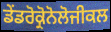
ਡੇਂਡਰੋਕ੍ਰੋਨੋਲੋਜੀਕਲ